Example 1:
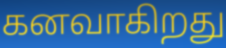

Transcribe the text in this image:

கனவாகிறது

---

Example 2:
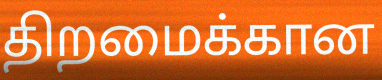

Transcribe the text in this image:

திறமைக்கான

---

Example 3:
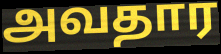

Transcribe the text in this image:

அவதார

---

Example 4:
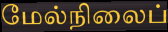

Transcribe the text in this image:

மேல்நிலைப்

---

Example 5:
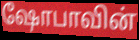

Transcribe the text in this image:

ஷோபாவின்